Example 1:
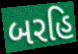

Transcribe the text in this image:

બરહિ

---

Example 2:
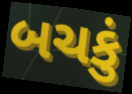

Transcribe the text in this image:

બચકું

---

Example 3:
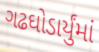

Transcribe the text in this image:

ગઢઘોડાર્યુંમાં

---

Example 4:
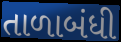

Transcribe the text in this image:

તાળાબંધી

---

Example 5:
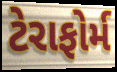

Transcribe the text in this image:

ટેરાફોર્મ